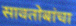
सावतोबांचा